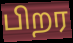
பிறர